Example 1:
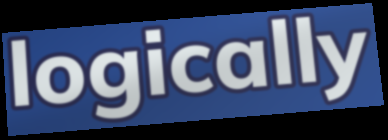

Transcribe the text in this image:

logically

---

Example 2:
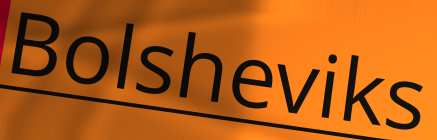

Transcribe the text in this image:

Bolsheviks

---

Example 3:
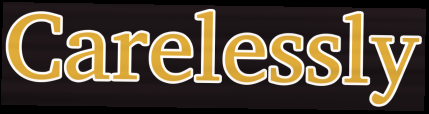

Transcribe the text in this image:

Carelessly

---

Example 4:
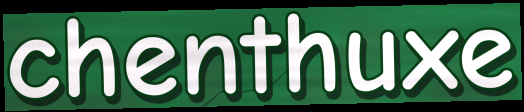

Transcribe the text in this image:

chenthuxe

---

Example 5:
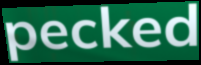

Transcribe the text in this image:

pecked